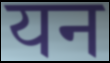
यन